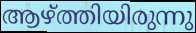
ആഴ്ത്തിയിരുന്നു